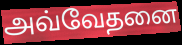
அவ்வேதனை